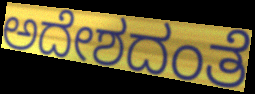
ಅದೇಶದಂತೆ